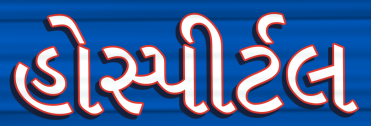
હોસ્પીર્ટલ